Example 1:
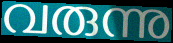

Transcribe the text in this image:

വരുന്നു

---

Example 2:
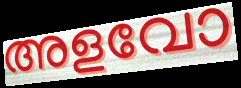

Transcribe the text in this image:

അളവോ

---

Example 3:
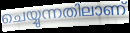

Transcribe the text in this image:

ചെയ്യുന്നതിലാണ്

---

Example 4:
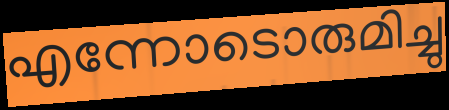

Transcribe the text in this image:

എന്നോടൊരുമിച്ചു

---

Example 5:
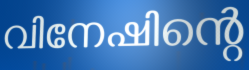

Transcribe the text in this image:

വിനേഷിന്റെ